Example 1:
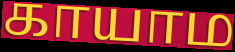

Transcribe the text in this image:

காயாம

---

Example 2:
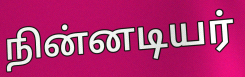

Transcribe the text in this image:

நின்னடியர்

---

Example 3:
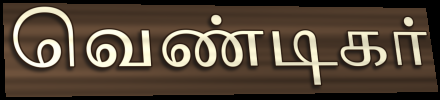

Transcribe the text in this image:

வெண்டிகர்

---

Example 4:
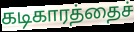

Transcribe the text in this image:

கடிகாரத்தைச்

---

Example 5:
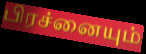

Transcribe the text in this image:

பிரச்னையும்